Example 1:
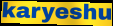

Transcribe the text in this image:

karyeshu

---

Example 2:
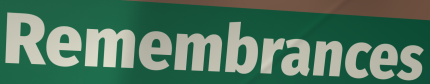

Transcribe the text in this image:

Remembrances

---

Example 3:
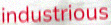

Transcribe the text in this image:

industrious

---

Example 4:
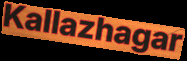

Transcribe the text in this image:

Kallazhagar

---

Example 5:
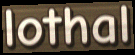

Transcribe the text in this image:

lothal